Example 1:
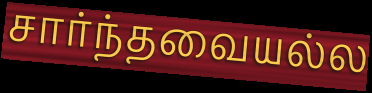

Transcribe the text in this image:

சார்ந்தவையல்ல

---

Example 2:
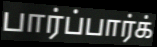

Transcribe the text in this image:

பார்ப்பார்க்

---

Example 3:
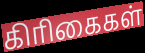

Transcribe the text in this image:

கிரிகைகள்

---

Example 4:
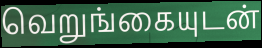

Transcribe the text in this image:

வெறுங்கையுடன்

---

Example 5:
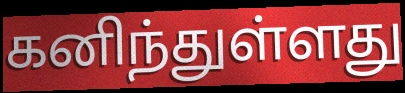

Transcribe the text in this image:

கனிந்துள்ளது